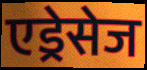
एड्रेसेज